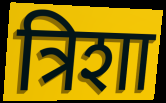
त्रिशा